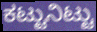
ಕಟ್ಟುನಿಟ್ಟು